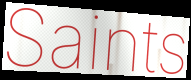
Saints